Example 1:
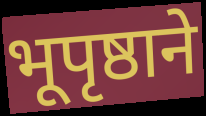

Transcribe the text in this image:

भूपृष्ठाने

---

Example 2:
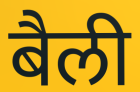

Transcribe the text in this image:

बैली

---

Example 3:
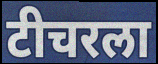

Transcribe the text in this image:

टीचरला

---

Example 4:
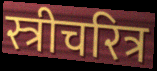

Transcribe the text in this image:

स्त्रीचरित्र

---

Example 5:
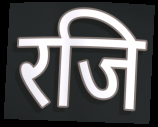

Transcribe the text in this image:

रजि